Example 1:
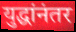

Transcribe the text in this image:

युद्धांनंतर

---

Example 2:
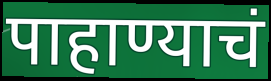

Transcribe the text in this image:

पाहाण्याचं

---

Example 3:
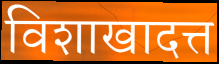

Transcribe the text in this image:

विशाखादत्त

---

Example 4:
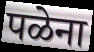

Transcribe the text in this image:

पळेना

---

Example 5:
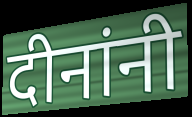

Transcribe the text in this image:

दीनांनी